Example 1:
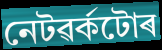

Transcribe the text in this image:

নেটৱৰ্কটোৰ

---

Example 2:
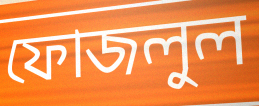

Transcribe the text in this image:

ফোজলুল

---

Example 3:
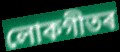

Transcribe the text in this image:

লোকগীতৰ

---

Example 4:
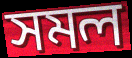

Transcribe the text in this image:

সমল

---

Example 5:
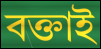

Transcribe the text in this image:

বক্তাই